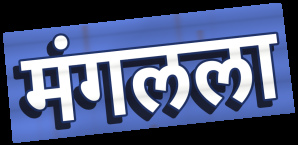
मंगलला